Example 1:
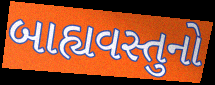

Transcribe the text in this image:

બાહ્યવસ્તુનો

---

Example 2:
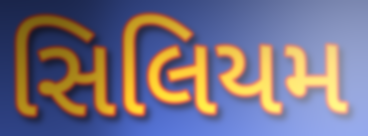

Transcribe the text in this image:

સિલિયમ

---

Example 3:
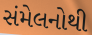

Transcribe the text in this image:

સંમેલનોથી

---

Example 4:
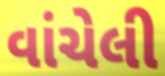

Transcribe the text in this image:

વાંચેલી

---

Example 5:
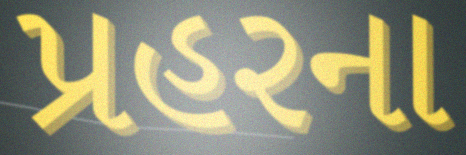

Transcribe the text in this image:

પ્રહરના